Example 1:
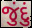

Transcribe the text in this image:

જુંદું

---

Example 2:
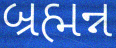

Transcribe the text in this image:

બ્રહ્મન્ન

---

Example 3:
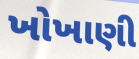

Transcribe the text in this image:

ખોખાણી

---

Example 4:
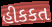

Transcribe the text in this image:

હીકકત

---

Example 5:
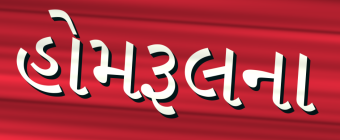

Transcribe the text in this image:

હોમરૂલના